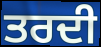
ਤਰਦੀ